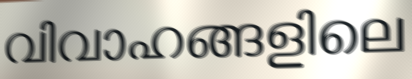
വിവാഹങ്ങളിലെ